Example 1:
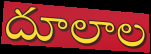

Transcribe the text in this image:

దూలాల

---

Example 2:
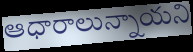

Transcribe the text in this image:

ఆధారాలున్నాయని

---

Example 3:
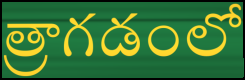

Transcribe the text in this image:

త్రాగడంలో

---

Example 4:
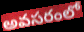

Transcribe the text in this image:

అవసరంలో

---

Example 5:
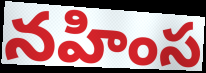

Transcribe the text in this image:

నహింస